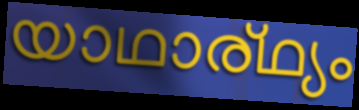
യാഥാര്ഥ്യം